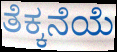
ತೆಕ್ಕನೆಯೆ